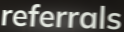
referrals